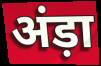
अंड़ा